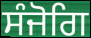
ਸੰਜੋਗਿ